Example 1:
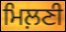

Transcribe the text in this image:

ਮਿਲ਼ਣੀ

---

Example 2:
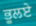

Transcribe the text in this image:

ਭੂਲਏ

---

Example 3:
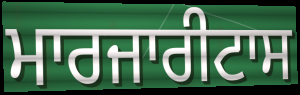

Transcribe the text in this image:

ਮਾਰਜਾਰੀਟਾਸ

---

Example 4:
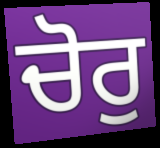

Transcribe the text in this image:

ਚੋਰੁ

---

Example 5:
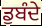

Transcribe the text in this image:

ਡੁਬੰਦੇ